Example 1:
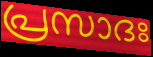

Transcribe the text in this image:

പ്രസാദഃ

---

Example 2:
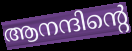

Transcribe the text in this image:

ആനന്ദിന്റെ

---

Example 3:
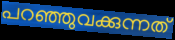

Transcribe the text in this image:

പറഞ്ഞുവക്കുന്നത്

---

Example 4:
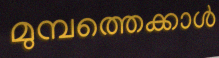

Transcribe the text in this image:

മുമ്പത്തെക്കാൾ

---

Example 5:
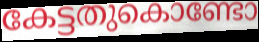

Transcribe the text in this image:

കേട്ടതുകൊണ്ടോ